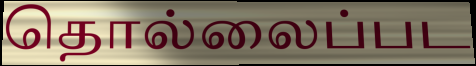
தொல்லைப்பட